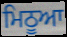
ਮਿਠੂਆ